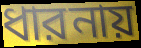
ধারনায়